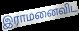
இராமனைவிட